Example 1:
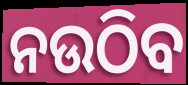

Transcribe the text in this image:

ନଉଠିବ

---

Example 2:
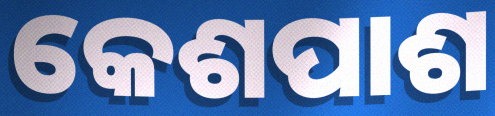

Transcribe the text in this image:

କେଶପାଶ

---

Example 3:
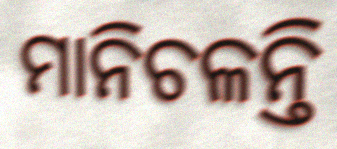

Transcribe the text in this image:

ମାନିଚଳନ୍ତି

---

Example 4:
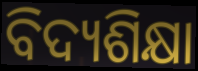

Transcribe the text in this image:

ବିଦ୍ୟଶିକ୍ଷା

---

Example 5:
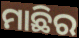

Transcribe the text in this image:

ମାଛିର